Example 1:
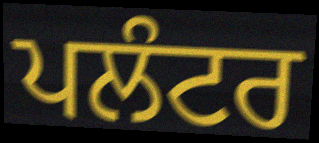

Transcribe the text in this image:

ਪਲੰਟਰ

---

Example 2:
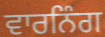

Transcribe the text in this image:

ਵਾਰਨਿੰਗ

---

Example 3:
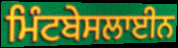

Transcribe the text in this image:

ਮਿੰਟਬੇਸਲਾਈਨ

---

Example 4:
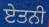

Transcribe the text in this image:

ਏਤਨੀ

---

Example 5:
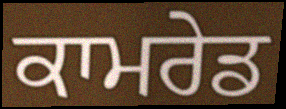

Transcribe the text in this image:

ਕਾਮਰੇਡ